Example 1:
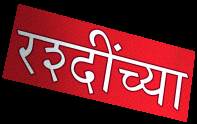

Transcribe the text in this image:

रश्दींच्या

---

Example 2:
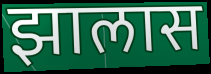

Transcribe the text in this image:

झालास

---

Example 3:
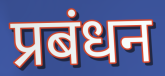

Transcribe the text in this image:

प्रबंधन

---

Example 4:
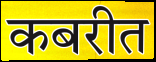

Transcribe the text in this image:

कबरीत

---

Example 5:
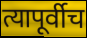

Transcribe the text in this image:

त्यापूर्वीच